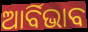
ଆର୍ବିଭାବ